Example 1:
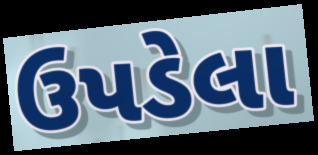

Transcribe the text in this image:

ઉપડેલા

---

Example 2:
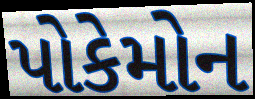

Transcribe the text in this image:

પોકેમોન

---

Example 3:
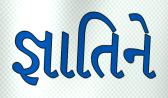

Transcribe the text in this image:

જ્ઞાતિને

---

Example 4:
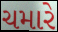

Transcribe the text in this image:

ચમારે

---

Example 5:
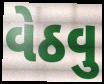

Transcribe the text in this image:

વેઠવુ